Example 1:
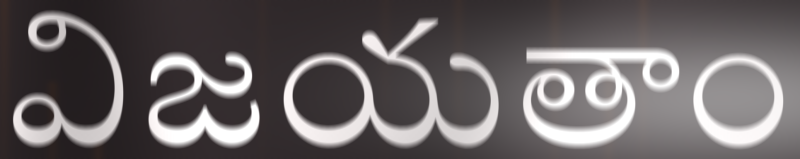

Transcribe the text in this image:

విజయతాం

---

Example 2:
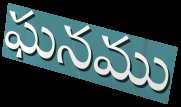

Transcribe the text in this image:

ఘనము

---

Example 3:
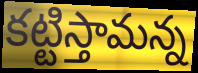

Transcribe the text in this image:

కట్టిస్తామన్న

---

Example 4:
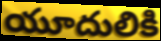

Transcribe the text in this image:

యూదులికి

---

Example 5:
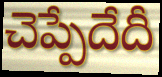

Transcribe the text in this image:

చెప్పేదేదీ